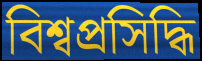
বিশ্বপ্ৰসিদ্ধি